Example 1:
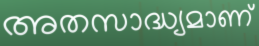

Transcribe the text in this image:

അതസാദ്ധ്യമാണ്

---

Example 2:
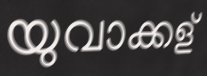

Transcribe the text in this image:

യുവാക്കള്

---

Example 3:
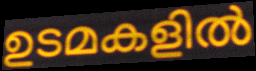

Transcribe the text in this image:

ഉടമകളിൽ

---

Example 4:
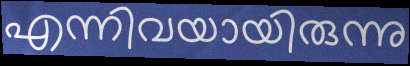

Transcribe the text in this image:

എന്നിവയായിരുന്നു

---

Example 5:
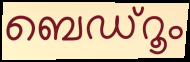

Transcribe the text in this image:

ബെഡ്റൂം